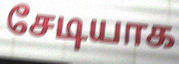
சேடியாக